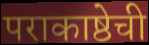
पराकाष्ठेची